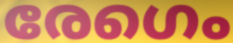
രേഗെം